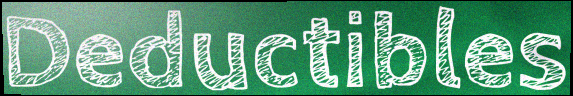
Deductibles